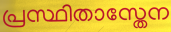
പ്രസ്ഥിതാസ്തേന